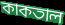
কাকতাল